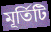
মূর্তিটি